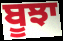
ਬੂਝਾ